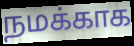
நமக்காக